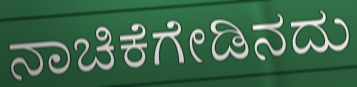
ನಾಚಿಕೆಗೇಡಿನದು